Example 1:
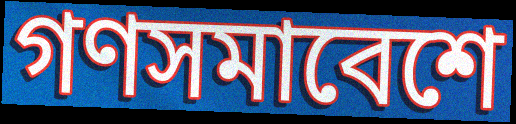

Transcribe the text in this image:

গণসমাবেশে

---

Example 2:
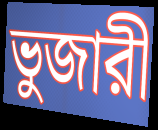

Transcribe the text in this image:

ভুজারী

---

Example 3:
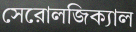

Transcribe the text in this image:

সেরোলজিক্যাল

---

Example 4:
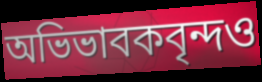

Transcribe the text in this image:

অভিভাবকবৃন্দও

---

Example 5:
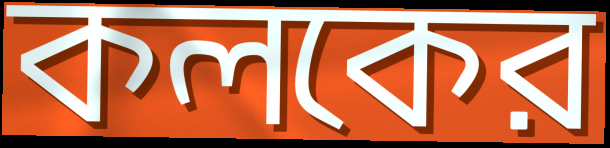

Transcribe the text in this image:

কলকের